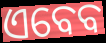
ଏବେବ